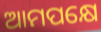
ଆମପକ୍ଷେ